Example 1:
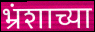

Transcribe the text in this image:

भ्रंशाच्या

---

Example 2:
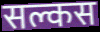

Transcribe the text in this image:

सल्कस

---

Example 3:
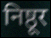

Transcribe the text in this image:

निष्ठूर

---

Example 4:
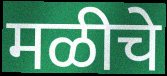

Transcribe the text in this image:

मळीचे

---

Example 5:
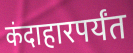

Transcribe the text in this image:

कंदाहारपर्यंत